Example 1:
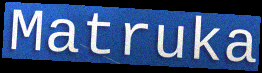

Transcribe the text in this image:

Matruka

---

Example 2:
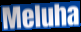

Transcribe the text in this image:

Meluha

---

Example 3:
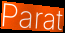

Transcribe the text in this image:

Parat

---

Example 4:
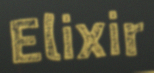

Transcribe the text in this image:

Elixir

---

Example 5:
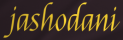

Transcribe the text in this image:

jashodani